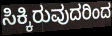
ಸಿಕ್ಕಿರುವುದರಿಂದ